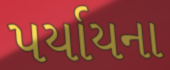
પર્યાયના